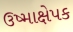
ઉષ્માક્ષેપક